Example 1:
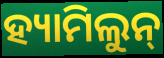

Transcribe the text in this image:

ହ୍ୟାମିଲୁନ୍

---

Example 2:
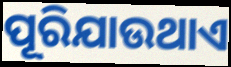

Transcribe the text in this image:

ପୂରିଯାଉଥାଏ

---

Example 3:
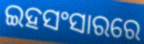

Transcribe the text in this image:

ଇହସଂସାରରେ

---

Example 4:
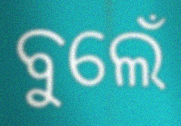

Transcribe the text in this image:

ବୁଲେଁ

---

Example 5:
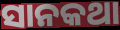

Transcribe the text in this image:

ସାନକଥା